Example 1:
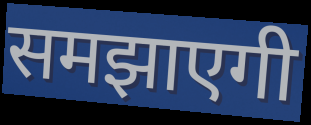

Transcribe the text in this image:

समझाएगी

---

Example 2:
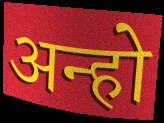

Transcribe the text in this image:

अन्हो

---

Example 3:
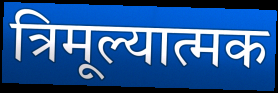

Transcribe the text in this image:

त्रिमूल्यात्मक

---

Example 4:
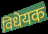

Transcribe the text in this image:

विधेयक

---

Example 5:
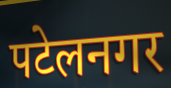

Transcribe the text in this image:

पटेलनगर